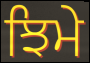
ਝਿਮੇ